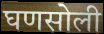
घणसोली